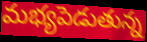
మభ్యపెడుతున్న